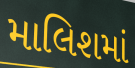
માલિશમાં